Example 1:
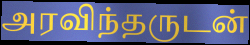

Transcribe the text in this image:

அரவிந்தருடன்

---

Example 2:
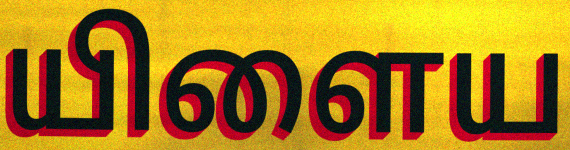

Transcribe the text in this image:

யிளைய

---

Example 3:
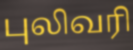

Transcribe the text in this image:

புலிவரி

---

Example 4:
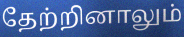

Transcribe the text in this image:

தேற்றினாலும்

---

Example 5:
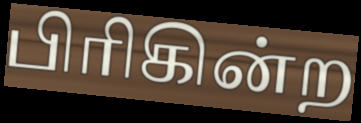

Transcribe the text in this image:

பிரிகின்ற